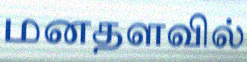
மனதளவில்